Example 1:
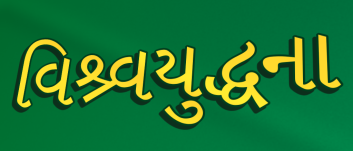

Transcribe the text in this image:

વિશ્ર્વયુદ્ધના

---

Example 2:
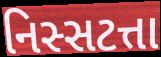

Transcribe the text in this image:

નિસ્સટત્તા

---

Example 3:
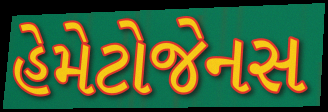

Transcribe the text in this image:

હેમેટોજેનસ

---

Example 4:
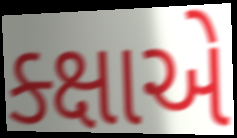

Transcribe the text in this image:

ક્ક્ષાએ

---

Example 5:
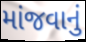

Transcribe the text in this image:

માંજવાનું